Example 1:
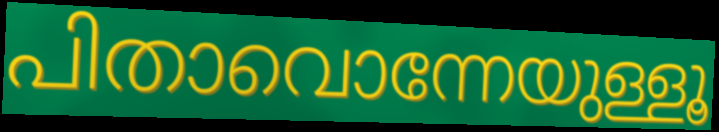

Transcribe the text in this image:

പിതാവൊന്നേയുള്ളൂ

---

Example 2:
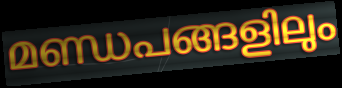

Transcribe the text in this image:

മണ്ഡപങ്ങളിലും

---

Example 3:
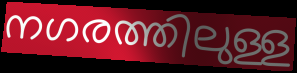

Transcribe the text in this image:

നഗരത്തിലുള്ള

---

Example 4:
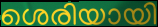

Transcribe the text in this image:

ശെരിയായി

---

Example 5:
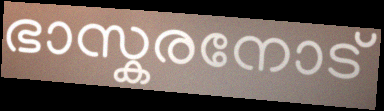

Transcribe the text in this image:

ഭാസ്കരനോട്